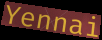
Yennai